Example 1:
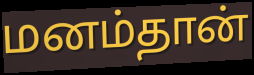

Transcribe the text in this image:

மனம்தான்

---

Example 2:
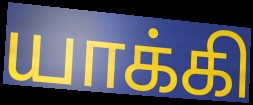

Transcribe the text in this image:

யாக்கி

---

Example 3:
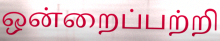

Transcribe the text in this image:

ஒன்றைப்பற்றி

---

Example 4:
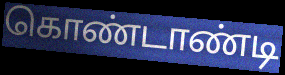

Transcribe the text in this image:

கொண்டாண்டி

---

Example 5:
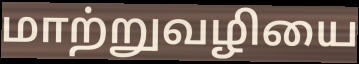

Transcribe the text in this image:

மாற்றுவழியை